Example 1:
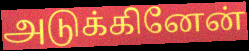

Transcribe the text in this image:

அடுக்கினேன்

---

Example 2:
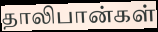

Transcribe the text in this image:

தாலிபான்கள்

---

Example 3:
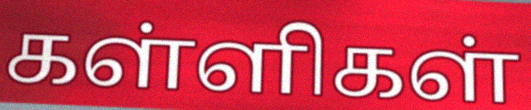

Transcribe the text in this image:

கள்ளிகள்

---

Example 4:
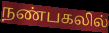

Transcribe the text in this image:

நண்பகலில்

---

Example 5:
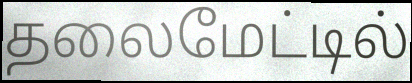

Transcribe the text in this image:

தலைமேட்டில்